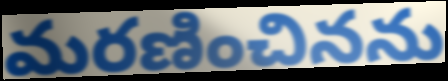
మరణించినను